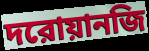
দরোয়ানজি